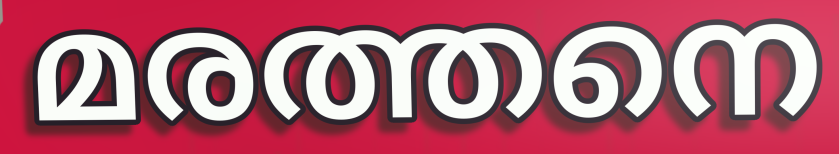
മരത്തനെ